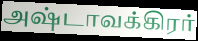
அஷ்டாவக்கிரர்